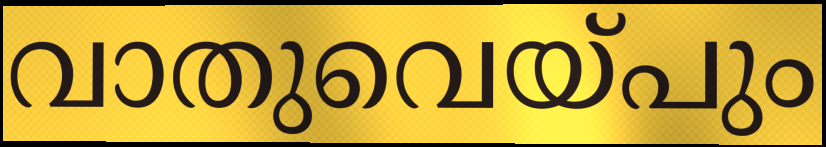
വാതുവെയ്പും